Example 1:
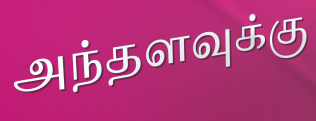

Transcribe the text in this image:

அந்தளவுக்கு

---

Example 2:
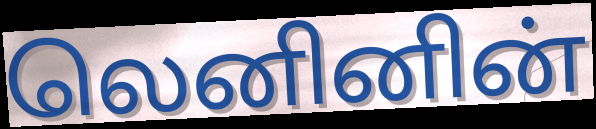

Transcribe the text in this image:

லெனினின்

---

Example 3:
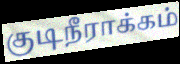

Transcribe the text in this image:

குடிநீராக்கம்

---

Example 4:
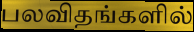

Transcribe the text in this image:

பலவிதங்களில்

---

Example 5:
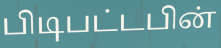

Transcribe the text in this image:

பிடிபட்டபின்